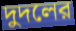
দুদলের